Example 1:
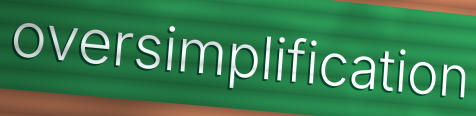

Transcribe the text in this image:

oversimplification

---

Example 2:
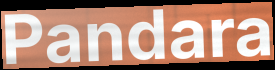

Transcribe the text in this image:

Pandara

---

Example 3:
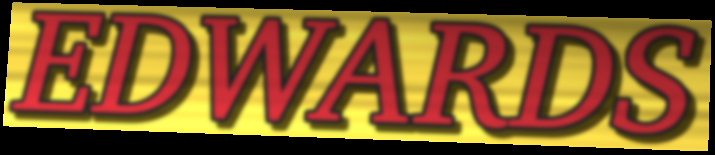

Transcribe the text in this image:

EDWARDS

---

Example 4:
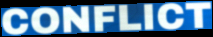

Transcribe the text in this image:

CONFLICT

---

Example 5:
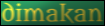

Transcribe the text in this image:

dimakan